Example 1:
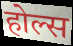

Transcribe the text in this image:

होल्स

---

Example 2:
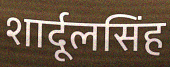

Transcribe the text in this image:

शार्दूलसिंह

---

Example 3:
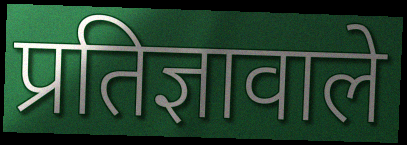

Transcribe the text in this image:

प्रतिज्ञावाले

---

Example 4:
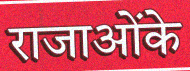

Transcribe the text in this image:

राजाओंके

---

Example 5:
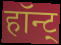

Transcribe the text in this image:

हॉन्ट्